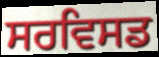
ਸਰਵਿਸਡ